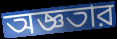
অজ্ঞতার